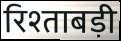
रिश्ताबड़ी